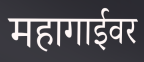
महागाईवर